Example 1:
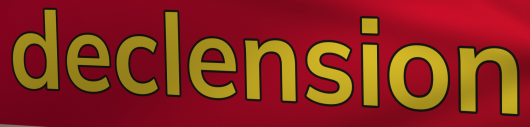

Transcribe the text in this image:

declension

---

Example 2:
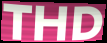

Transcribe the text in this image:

THD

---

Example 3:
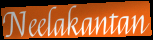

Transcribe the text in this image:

Neelakantan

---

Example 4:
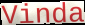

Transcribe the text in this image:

Vinda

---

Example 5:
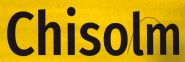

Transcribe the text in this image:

Chisolm